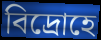
বিদ্ৰোহে